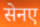
सेनए